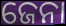
ଜେନା